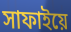
সাফাইয়ে